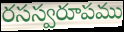
రసస్వరూపము